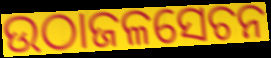
ଉଠାଜଳସେଚନ